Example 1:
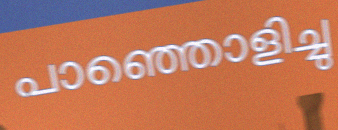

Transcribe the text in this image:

പാഞ്ഞൊളിച്ചു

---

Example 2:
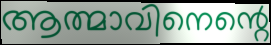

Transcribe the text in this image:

ആത്മാവിനെന്റെ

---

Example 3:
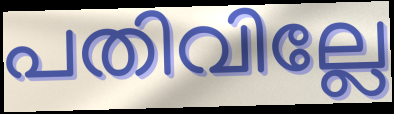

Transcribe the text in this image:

പതിവില്ലേ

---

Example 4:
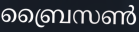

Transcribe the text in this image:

ബ്രൈസൺ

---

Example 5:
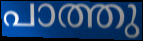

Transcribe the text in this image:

പാത്തു